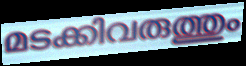
മടക്കിവരുത്തും